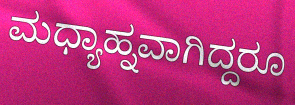
ಮಧ್ಯಾಹ್ನವಾಗಿದ್ದರೂ